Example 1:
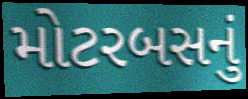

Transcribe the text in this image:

મોટરબસનું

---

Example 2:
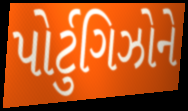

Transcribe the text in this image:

પોર્ટુગિઝોને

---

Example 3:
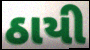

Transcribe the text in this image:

ઠાયી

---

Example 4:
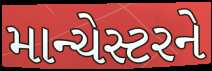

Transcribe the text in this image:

માન્ચેસ્ટરને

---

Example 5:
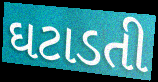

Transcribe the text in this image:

ઘટાડતી